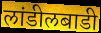
लांडीलबाडी